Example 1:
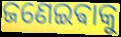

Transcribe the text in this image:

ଜଣେଇଵାକୁ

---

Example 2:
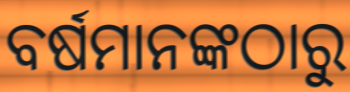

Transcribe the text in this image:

ବର୍ଷମାନଙ୍କଠାରୁ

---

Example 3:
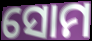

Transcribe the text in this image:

ସୋମ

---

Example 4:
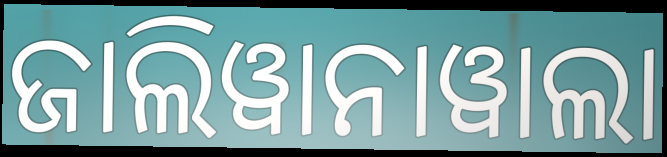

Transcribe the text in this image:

ଜାଲିୱାନାୱାଲା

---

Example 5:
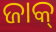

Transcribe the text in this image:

ଜାକ୍